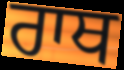
ਰਾਥ